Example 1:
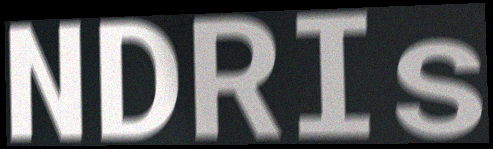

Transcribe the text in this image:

NDRIs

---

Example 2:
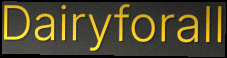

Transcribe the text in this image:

Dairyforall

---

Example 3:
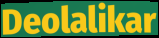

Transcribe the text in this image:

Deolalikar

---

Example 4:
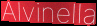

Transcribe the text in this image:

Alvinella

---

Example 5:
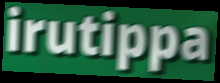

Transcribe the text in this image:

irutippa